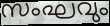
സംഘവും